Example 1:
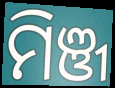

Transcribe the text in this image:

ମିଞ୍ଜ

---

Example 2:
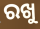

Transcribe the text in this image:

ରଖୁ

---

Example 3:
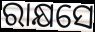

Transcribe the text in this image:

ରାକ୍ଷସେ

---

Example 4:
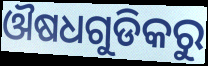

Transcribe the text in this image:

ଔଷଧଗୁଡିକରୁ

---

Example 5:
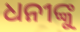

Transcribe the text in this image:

ଧନୀଙ୍କୁ